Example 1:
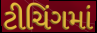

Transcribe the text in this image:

ટીચિંગમાં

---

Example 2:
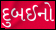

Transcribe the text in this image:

દુબઈનો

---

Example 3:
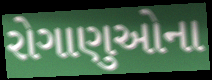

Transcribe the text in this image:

રોગાણુઓના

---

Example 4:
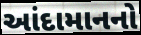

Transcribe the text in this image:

આંદામાનનો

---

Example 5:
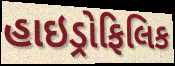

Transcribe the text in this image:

હાઇડ્રોફિલિક